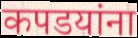
कपडयांना